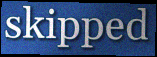
skipped